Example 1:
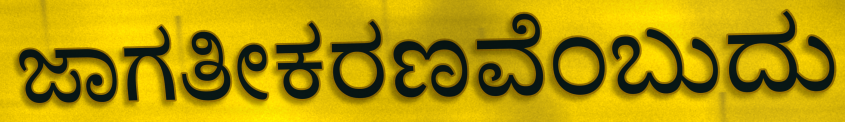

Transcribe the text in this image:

ಜಾಗತೀಕರಣವೆಂಬುದು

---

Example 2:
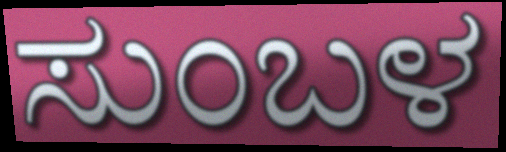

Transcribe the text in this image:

ಸುಂಬಳ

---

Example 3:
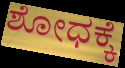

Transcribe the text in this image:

ಶೋಧಕ್ಕೆ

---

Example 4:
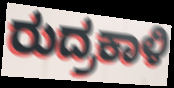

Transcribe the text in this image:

ರುದ್ರಕಾಳಿ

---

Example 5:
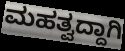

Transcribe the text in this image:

ಮಹತ್ವದ್ದಾಗಿ